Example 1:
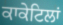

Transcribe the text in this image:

ਕਾਕੇਟਿਲਾਂ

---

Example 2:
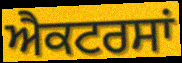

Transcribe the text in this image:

ਐਕਟਰਸਾਂ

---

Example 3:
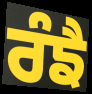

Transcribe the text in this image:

ਰੰਙੈ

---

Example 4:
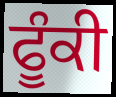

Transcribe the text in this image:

ਫੂੰਕੀ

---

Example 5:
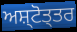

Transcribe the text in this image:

ਅਸ਼੍ਟੋਤ੍ਤਰ